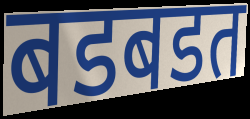
बडबडत